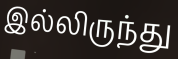
இல்லிருந்து